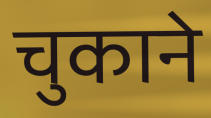
चुकाने